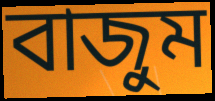
বাজুম